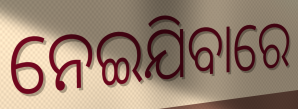
ନେଇଯିବାରେ